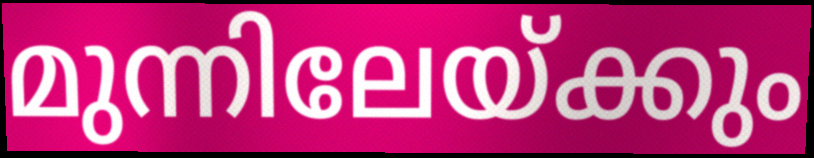
മുന്നിലേയ്ക്കും